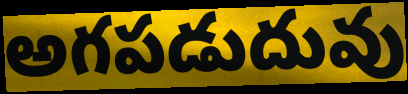
అగపడుదువు